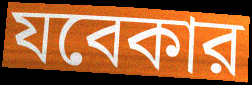
যবেকার